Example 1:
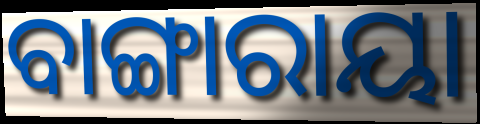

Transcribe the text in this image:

ବାଙ୍ଗାରାୟା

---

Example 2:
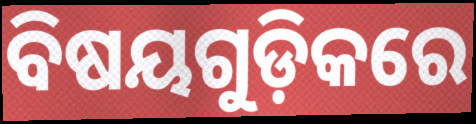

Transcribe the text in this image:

ବିଷୟଗୁଡ଼ିକରେ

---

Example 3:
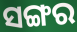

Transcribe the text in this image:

ସଙ୍ଗର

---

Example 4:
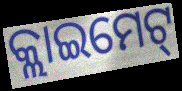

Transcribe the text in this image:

କ୍ଲାଇମେଟ୍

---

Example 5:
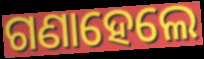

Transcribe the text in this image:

ଗଣାହେଲେ